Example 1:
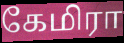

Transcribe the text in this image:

கேமிரா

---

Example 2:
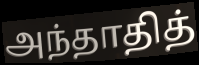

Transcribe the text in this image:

அந்தாதித்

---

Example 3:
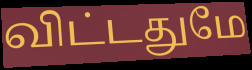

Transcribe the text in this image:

விட்டதுமே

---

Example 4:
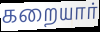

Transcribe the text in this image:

கறையார்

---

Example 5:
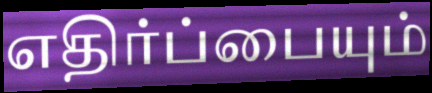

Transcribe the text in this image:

எதிர்ப்பையும்